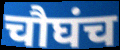
चौघंच